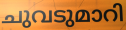
ചുവടുമാറി